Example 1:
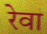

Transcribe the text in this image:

रेवा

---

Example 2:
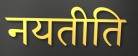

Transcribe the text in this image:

नयतीति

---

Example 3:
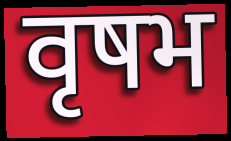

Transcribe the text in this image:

वृषभ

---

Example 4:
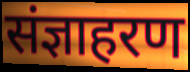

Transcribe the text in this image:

संज्ञाहरण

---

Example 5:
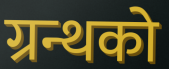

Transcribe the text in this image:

ग्रन्थको